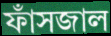
ফাঁসজাল